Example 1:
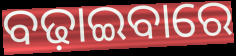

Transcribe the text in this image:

ବଢ଼ାଇବାରେ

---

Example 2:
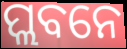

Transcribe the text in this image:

ପ୍ଲବନେ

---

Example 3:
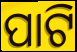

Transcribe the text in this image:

ପାଟି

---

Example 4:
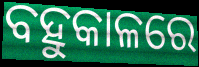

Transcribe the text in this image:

ବହୁକାଳରେ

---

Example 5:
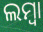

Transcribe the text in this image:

ଲମ୍ୱା